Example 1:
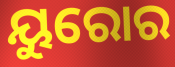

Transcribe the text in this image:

ୟୁରୋର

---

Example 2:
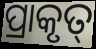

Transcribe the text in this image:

ପ୍ରାକୃତ୍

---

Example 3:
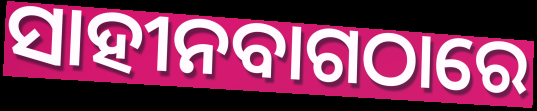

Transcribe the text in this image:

ସାହୀନବାଗଠାରେ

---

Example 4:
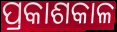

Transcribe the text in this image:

ପ୍ରକାଶକାଳ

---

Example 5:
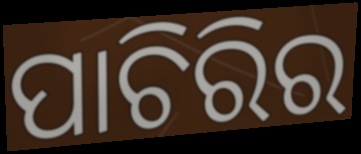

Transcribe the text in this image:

ପାଚିରିର